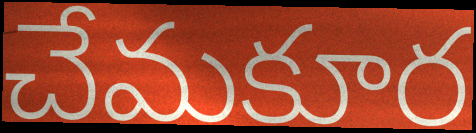
చేమకూర